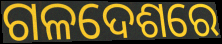
ଗଳଦେଶରେ